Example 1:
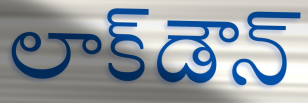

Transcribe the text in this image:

లాక్‌డౌన్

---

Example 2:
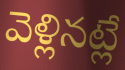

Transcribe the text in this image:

వెళ్లినట్లే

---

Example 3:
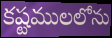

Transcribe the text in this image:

కష్టములలోను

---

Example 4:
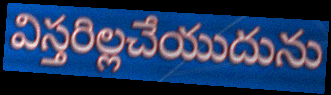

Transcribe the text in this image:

విస్తరిల్లచేయుదును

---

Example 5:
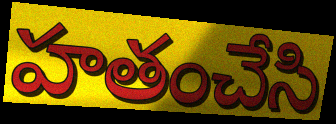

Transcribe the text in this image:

హతంచేసి